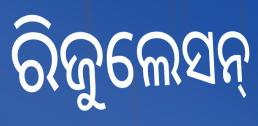
ରିଜୁଲେସନ୍